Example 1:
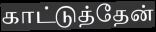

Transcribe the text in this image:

காட்டுத்தேன்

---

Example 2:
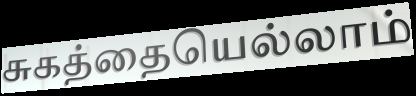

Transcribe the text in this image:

சுகத்தையெல்லாம்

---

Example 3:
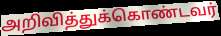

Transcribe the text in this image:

அறிவித்துக்கொண்டவர்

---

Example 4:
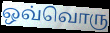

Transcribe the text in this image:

ஒவ்வொரு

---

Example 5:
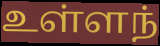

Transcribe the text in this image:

உள்ளந்